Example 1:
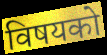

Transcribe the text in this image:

विषयको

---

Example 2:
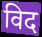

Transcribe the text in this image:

विद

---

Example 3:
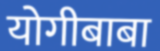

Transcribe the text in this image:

योगीबाबा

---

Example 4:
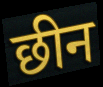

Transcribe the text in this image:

छीन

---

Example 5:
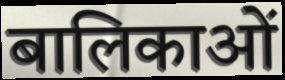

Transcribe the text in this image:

बालिकाओं